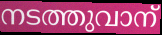
നടത്തുവാന്